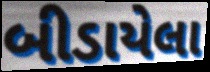
બીડાયેલા